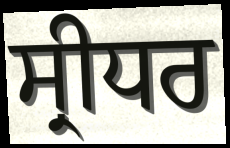
ਸ੍ਰੀਧਰ